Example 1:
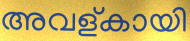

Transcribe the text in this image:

അവള്കായി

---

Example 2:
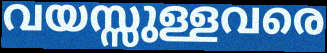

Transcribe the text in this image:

വയസ്സുള്ളവരെ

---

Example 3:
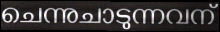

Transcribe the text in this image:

ചെന്നുചാടുന്നവന്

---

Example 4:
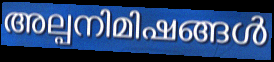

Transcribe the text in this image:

അല്പനിമിഷങ്ങൾ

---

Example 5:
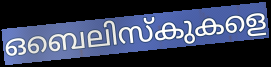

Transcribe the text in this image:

ഒബെലിസ്കുകളെ